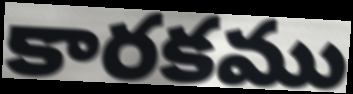
కారకము